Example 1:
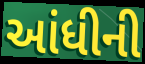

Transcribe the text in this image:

આંધીની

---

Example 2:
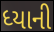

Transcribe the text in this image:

ધ્યાની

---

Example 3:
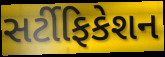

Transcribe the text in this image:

સર્ટીફિકેશન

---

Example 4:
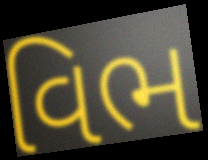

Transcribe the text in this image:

વિભ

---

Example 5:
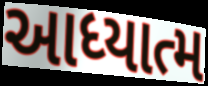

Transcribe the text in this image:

આધ્યાત્મ